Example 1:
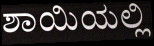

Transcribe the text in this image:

ಶಾಯಿಯಲ್ಲಿ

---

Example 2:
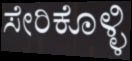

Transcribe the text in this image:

ಸೇರಿಕೊಳ್ಳಿ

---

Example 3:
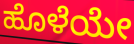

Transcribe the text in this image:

ಹೊಳೆಯೇ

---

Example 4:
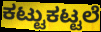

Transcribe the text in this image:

ಕಟ್ಟುಕಟ್ಟಲೆ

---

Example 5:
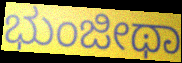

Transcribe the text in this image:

ಭುಂಜೀಥಾ